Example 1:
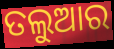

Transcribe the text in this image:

ତଲୁଆର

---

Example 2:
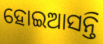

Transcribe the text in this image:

ହୋଇଆସନ୍ତି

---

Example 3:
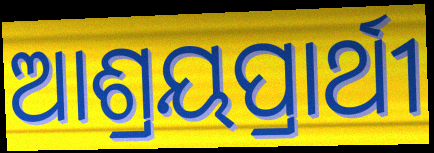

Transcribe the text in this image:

ଆଶ୍ରୟପ୍ରାର୍ଥୀ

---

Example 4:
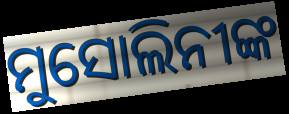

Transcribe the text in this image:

ମୁସୋଲିନୀଙ୍କ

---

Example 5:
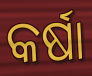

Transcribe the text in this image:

କର୍ଷା